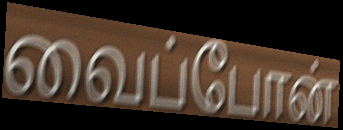
வைப்போன்